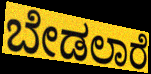
ಬೇಡಲಾರೆ